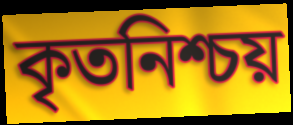
কৃতনিশ্চয়